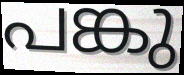
പങ്കു